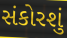
સંકોરશું